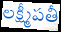
లక్ష్మీపతీ